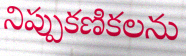
నిప్పుకణికలను